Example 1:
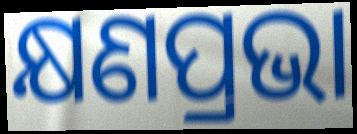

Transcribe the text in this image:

କ୍ଷଣପ୍ରଭା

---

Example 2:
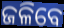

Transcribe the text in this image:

ଜଳିବେ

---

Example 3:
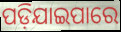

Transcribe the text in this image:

ପଡ଼ିଯାଇପାରେ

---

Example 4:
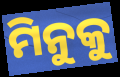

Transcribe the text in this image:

ମିନୁକୁ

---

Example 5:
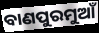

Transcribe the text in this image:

ବାଣପୁରମୁଆଁ